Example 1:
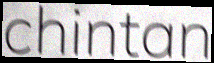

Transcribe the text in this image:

chintan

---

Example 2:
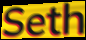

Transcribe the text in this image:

Seth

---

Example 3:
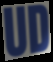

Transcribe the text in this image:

UD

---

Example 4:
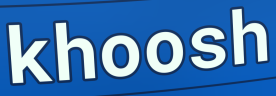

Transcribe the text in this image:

khoosh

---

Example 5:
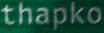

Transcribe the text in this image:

thapko